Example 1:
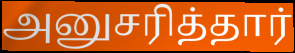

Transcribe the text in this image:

அனுசரித்தார்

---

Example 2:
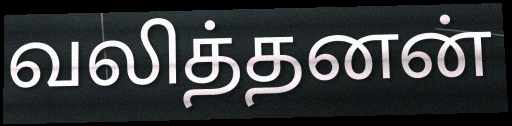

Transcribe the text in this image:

வலித்தனன்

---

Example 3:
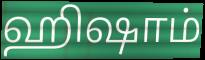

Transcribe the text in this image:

ஹிஷாம்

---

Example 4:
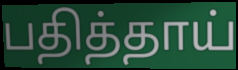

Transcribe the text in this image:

பதித்தாய்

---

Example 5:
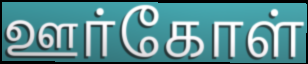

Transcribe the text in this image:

ஊர்கோள்